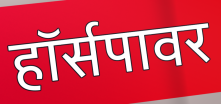
हॉर्सपावर